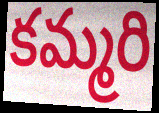
కమ్మరి